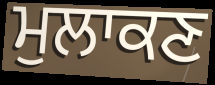
ਮੁਲਾਕਣ